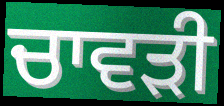
ਚਾਵੜੀ